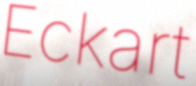
Eckart